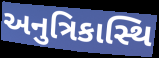
અનુત્રિકાસ્થિ